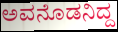
ಅವನೊಡನಿದ್ದ